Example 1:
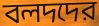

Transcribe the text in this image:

বলদদের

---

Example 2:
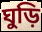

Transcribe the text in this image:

ঘুড়ি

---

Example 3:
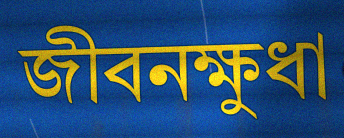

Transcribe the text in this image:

জীবনক্ষুধা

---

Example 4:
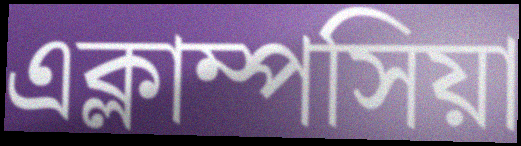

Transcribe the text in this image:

এক্লাম্পসিয়া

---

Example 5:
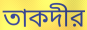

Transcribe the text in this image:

তাকদীর